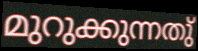
മുറുക്കുന്നതു്